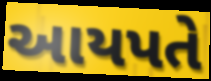
આયપતે